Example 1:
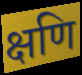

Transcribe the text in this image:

क्षणि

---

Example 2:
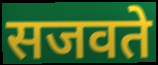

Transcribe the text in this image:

सजवते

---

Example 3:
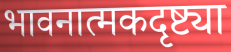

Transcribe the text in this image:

भावनात्मकदृष्ट्या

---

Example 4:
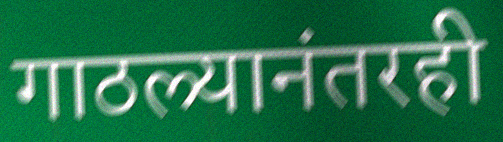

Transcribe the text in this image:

गाठल्यानंतरही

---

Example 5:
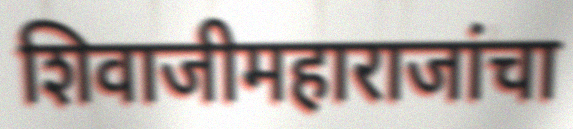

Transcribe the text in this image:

शिवाजीमहाराजांचा